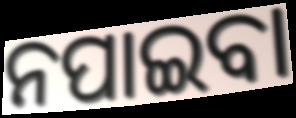
ନପାଇବା